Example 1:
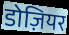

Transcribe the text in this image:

डोज़ियर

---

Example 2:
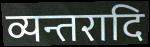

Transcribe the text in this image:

व्यन्तरादि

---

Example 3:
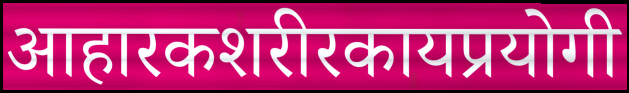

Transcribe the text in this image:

आहारकशरीरकायप्रयोगी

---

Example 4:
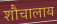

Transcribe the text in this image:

शौचालाय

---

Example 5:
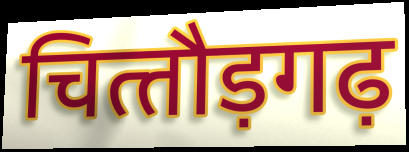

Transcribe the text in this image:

चित्‍तौड़गढ़